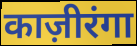
काज़ीरंगा